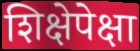
शिक्षेपेक्षा